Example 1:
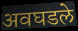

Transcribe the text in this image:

अवघडले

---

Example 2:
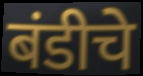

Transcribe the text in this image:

बंडीचे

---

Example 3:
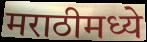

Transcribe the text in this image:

मराठीमध्ये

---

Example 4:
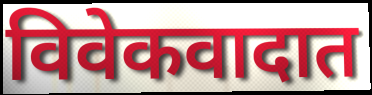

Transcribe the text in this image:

विवेकवादात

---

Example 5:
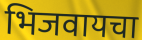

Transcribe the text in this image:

भिजवायचा